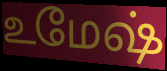
உமேஷ்